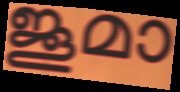
ജൂമാ